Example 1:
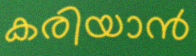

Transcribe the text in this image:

കരിയാൻ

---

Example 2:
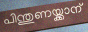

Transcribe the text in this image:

പിന്തുണയ്ക്കാന്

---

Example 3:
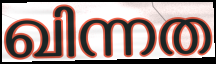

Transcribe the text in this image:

ഖിന്നത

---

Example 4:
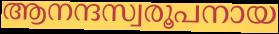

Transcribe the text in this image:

ആനന്ദസ്വരൂപനായ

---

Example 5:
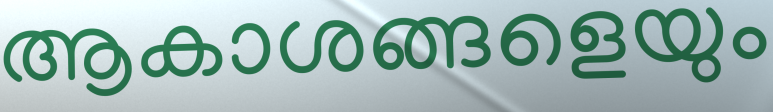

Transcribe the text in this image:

ആകാശങ്ങളെയും